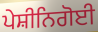
ਪੇਸ਼ੀਨਿਗੋਈ